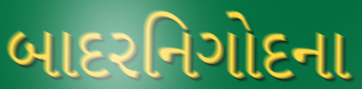
બાદરનિગોદના